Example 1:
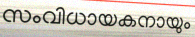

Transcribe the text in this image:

സംവിധായകനായും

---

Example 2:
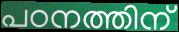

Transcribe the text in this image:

പഠനത്തിന്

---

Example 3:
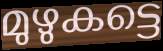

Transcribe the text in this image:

മുഴുകട്ടെ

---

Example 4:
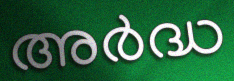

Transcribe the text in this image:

അർദ്ധ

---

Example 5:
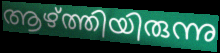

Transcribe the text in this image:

ആഴ്ത്തിയിരുന്നു